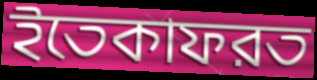
ইতেকাফরত